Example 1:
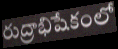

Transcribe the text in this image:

రుద్రాభిషేకంలో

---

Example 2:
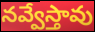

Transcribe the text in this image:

నవ్వేస్తావు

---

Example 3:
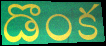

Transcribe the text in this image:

డొంక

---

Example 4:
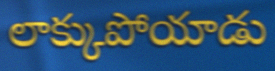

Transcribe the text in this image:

లాక్కుపోయాడు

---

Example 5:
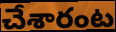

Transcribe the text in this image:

చేశారంట